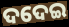
ଦଦେଇ